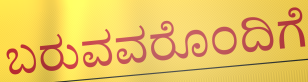
ಬರುವವರೊಂದಿಗೆ